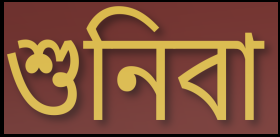
শুনিবা